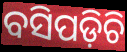
ବସିପଡ଼ିଚି